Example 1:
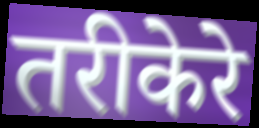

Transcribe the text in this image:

तरीकेरे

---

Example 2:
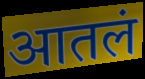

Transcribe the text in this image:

आतलं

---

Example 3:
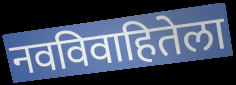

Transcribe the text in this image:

नवविवाहितेला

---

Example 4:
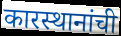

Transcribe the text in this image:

कारस्थानांची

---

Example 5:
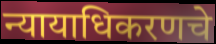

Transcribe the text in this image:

न्यायाधिकरणचे